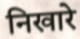
निखारे